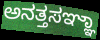
ಅನತ್ತಸಞ್ಞಾ